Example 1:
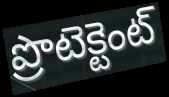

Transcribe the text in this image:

ప్రొటెక్టెంట్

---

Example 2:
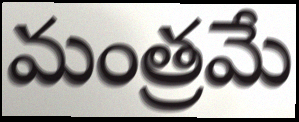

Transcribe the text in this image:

మంత్రమే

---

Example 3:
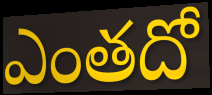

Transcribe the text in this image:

ఎంతదో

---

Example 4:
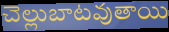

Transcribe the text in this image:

చెల్లుబాటవుతాయి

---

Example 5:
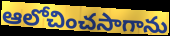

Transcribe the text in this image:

ఆలోచించసాగాను